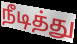
நீடித்து